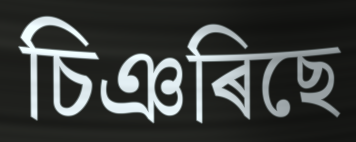
চিঞৰিছে